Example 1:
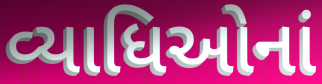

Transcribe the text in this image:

વ્યાધિઓનાં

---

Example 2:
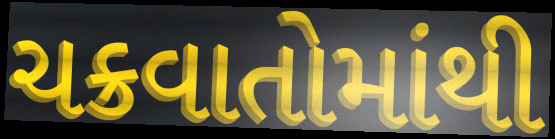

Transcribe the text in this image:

ચક્રવાતોમાંથી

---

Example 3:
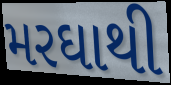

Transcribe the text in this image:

મરઘાથી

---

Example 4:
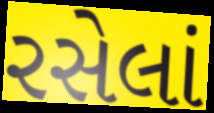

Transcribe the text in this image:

રસેલાં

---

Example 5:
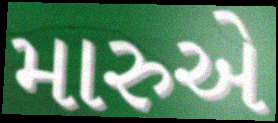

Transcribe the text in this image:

મારુએ